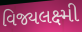
વિજ્યલક્ષ્મી